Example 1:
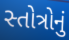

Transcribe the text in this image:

સ્તોત્રોનું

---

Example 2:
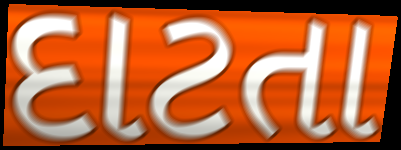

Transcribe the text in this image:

દાટતા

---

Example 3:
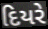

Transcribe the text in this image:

દિયરે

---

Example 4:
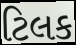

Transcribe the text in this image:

ટિલક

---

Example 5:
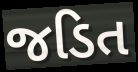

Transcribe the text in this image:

જડિત